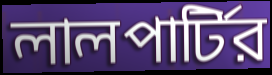
লালপার্টির